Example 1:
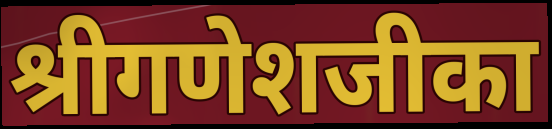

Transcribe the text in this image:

श्रीगणेशजीका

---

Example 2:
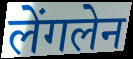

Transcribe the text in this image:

लेंगलेन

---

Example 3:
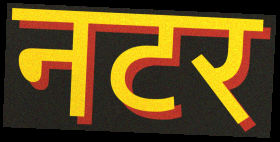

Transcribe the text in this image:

नटर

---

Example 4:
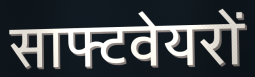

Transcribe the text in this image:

साफ्टवेयरों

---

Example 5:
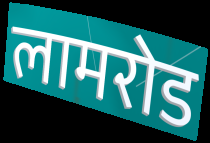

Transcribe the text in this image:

लामरोड